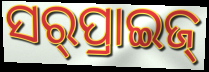
ସର୍‌ପ୍ରାଇଜ୍